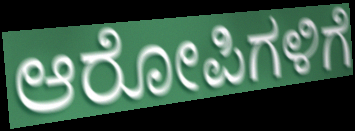
ಆರೋಪಿಗಳಿಗೆ